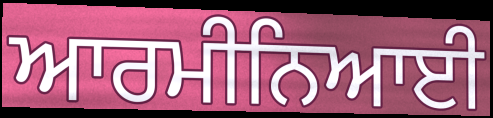
ਆਰਮੀਨਿਆਈ